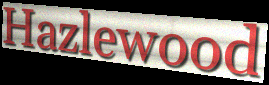
Hazlewood